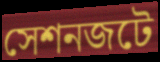
সেশনজটে